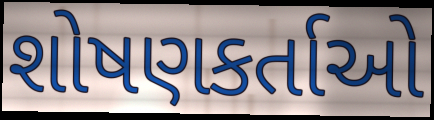
શોષણકર્તાઓ